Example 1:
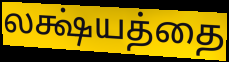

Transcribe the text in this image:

லக்ஷ்யத்தை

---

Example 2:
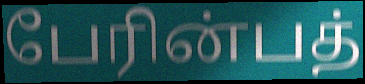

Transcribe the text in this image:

பேரின்பத்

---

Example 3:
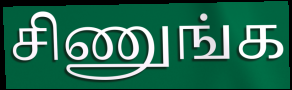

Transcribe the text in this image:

சிணுங்க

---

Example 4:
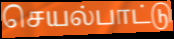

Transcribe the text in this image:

செயல்பாட்டு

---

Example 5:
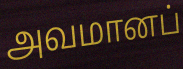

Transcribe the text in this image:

அவமானப்